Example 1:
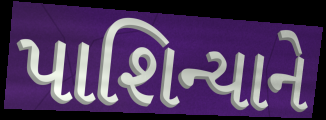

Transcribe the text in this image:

પાશિન્યાને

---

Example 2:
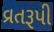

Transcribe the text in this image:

વ્રતરૂપી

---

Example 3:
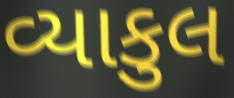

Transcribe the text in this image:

વ્યાકુલ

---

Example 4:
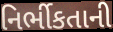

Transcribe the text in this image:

નિર્ભીકતાની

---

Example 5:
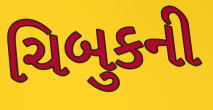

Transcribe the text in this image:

ચિબુકની